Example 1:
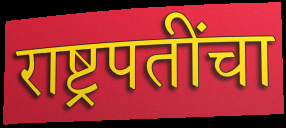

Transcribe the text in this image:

राष्ट्रपतींचा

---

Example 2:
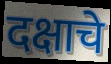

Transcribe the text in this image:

दक्षाचे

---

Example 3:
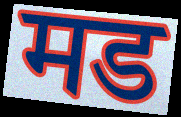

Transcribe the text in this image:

मड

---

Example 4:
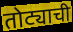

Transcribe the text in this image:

तोट्याची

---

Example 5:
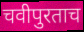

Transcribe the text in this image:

चवीपुरताच